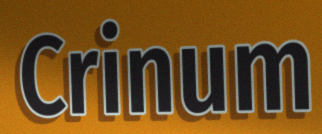
Crinum